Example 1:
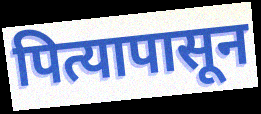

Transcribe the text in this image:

पित्यापासून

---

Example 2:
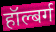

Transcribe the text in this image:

हॉल्बर्ग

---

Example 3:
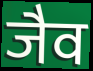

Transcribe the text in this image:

जैव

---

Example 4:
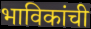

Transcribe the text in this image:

भाविकांची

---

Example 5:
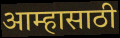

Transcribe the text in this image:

आम्हासाठी